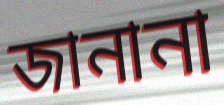
জানানা